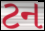
ટન